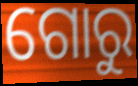
ଗୋରୁ